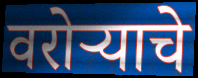
वरोऱ्याचे